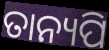
ତାନ୍ୟପି